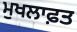
ਮੁਖਲਾਫ਼ਤ